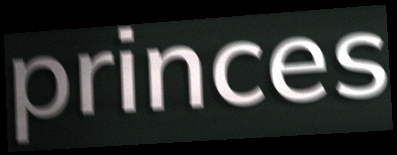
princes